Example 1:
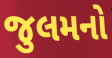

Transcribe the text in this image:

જુલમનો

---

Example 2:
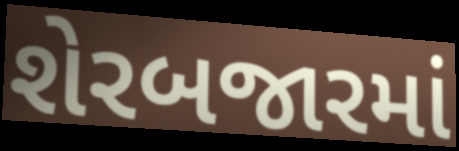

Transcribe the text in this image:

શેરબજારમાં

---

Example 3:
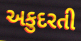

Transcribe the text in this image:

અકુદરતી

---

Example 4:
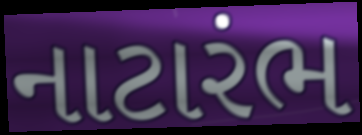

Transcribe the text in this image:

નાટારંભ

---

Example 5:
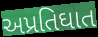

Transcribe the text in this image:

અપ્રતિઘાત